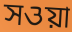
সওয়া